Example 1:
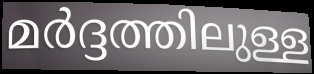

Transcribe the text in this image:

മർദ്ദത്തിലുള്ള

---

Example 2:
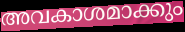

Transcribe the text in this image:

അവകാശമാക്കും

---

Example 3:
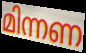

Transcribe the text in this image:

മിന്നണ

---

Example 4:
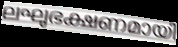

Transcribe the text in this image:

ലഘുഭക്ഷണമായി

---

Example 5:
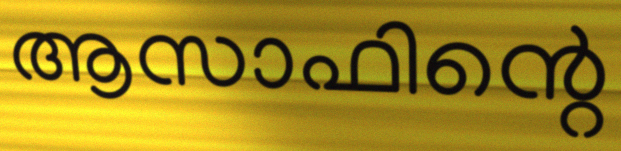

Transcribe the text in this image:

ആസാഫിന്റെ